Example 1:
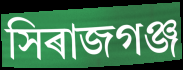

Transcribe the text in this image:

সিৰাজগঞ্জ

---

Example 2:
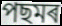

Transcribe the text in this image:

পছমৰ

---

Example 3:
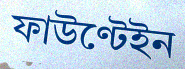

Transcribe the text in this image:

ফাউণ্টেইন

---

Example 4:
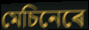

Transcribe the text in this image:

মেচিনেৰে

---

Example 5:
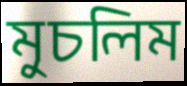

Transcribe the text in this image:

মুচলিম